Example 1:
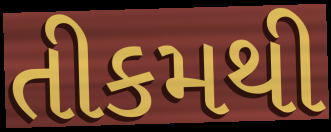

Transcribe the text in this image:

તીકમથી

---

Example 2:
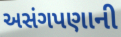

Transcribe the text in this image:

અસંગપણાની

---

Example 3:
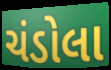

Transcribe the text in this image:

ચંડોલા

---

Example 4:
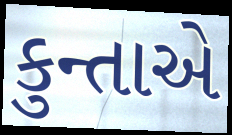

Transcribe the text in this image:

કુન્તાએ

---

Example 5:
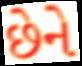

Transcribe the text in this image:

છેને